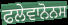
ਫਲੇਵਾਨੋਨਸ